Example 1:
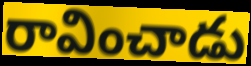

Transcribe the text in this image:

రావించాడు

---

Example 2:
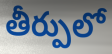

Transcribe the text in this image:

తీర్పులో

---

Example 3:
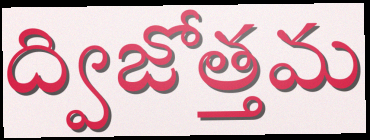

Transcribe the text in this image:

ద్విజోత్తమ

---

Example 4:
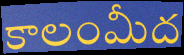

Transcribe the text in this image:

కాలంమీద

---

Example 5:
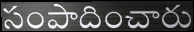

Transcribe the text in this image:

సంపాదించారు